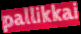
pallikkai